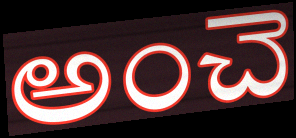
అంచె